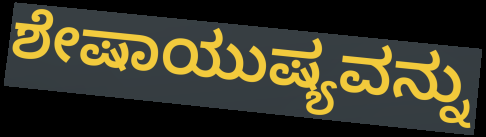
ಶೇಷಾಯುಷ್ಯವನ್ನು